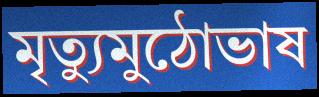
মৃত্যুমুঠোভাষ